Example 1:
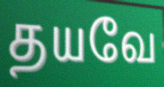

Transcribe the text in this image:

தயவே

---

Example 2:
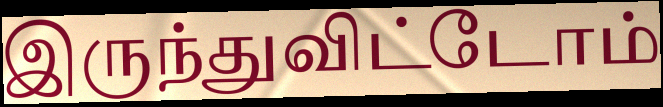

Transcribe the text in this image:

இருந்துவிட்டோம்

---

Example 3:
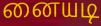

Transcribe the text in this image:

னையடி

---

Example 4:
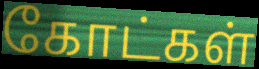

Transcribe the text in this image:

கோட்கள்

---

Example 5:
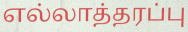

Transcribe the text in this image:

எல்லாத்தரப்பு